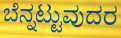
ಬೆನ್ನಟ್ಟುವುದರ